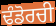
ਢੰਡੋਰਚੀ